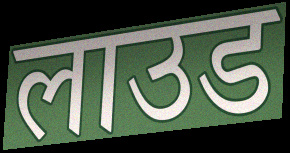
लाउड